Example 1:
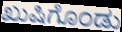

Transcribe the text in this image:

ಖುಷಿಗೊಂಡು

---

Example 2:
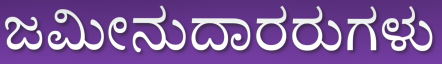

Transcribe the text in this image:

ಜಮೀನುದಾರರುಗಳು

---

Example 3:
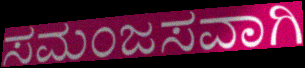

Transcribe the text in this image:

ಸಮಂಜಸವಾಗಿ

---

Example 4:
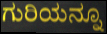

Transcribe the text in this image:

ಗುರಿಯನ್ನೂ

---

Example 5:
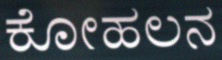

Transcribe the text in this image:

ಕೋಹಲನ